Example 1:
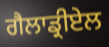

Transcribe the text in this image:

ਗੈਲਾਡ੍ਰੀਏਲ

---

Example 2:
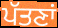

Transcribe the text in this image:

ਪੱਤਣਾਂ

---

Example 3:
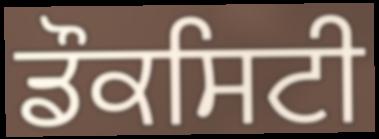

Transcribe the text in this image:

ਡੌਕਸਿਟੀ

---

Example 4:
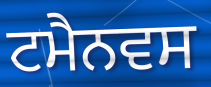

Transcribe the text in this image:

ਟਮੈਨਵਸ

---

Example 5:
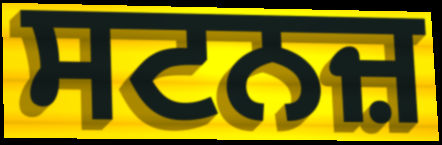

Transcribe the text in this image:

ਸਟਨਜ਼